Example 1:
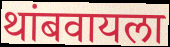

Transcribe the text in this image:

थांबवायला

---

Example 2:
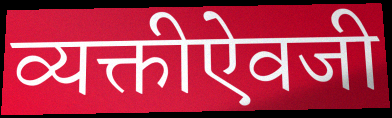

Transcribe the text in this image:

व्यक्तीऐवजी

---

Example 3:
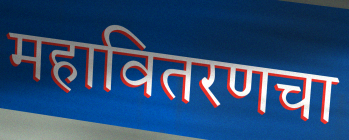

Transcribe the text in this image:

महावितरणचा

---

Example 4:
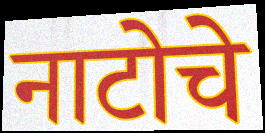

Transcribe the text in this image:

नाटोचे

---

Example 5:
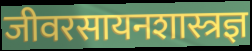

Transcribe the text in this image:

जीवरसायनशास्त्रज्ञ